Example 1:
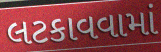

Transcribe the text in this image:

લટકાવવામાં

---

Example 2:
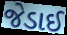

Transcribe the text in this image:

જેડાઈ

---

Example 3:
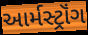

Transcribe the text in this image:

આર્મસ્ટ્રૉંગ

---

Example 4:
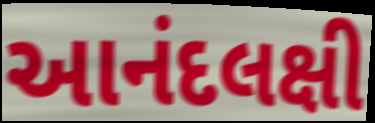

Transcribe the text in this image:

આનંદલક્ષી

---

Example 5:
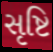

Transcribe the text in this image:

સૃષ્ટિ